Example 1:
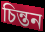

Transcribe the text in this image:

চিন্তন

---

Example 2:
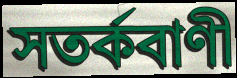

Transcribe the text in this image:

সতৰ্কবাণী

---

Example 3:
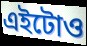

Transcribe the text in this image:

এইটোও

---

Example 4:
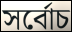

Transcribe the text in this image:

সৰ্বোচ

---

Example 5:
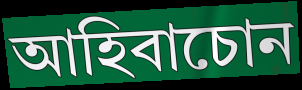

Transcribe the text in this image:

আহিবাচোন